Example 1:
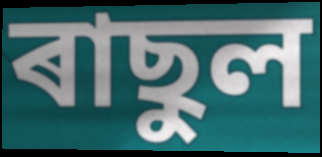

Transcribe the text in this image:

ৰাছুল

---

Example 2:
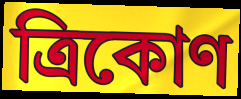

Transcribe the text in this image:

ত্ৰিকোণ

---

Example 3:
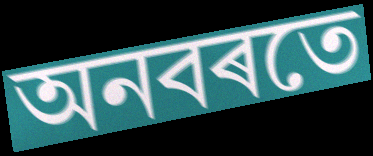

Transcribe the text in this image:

অনবৰতে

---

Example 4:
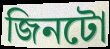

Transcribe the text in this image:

জিনটো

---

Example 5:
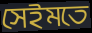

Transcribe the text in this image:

সেইমতে